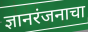
ज्ञानरंजनाचा